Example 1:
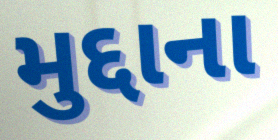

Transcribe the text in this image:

મુદ્દાના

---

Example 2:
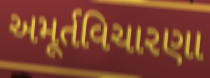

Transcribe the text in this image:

અમૂર્તવિચારણા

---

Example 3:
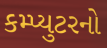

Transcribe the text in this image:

કમ્પ્યુટરનો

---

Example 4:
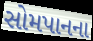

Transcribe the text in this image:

સોમપાનના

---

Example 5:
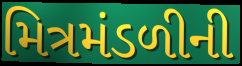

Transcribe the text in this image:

મિત્રમંડળીની